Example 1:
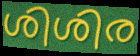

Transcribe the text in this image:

ശിശിര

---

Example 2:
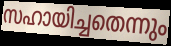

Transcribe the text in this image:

സഹായിച്ചതെന്നും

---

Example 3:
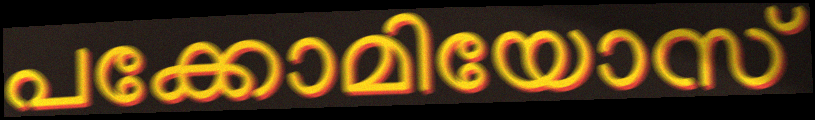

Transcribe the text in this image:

പക്കോമിയോസ്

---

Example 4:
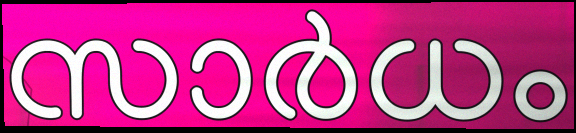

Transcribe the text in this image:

സാർധം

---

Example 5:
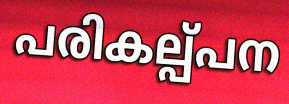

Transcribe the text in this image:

പരികല്പ്പന